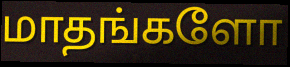
மாதங்களோ